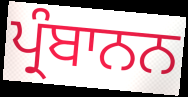
ਪ੍ਰੰਬਾਨਨ